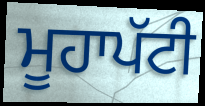
ਮੂਹਾਪੱਟੀ